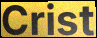
Crist